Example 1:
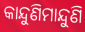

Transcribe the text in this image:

କାନ୍ଦୁଣିମାନ୍ଦୁଣି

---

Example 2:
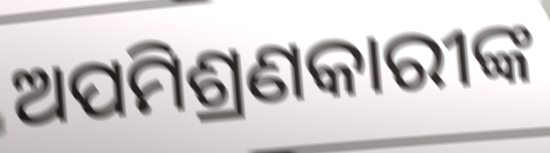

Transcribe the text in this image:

ଅପମିଶ୍ରଣକାରୀଙ୍କ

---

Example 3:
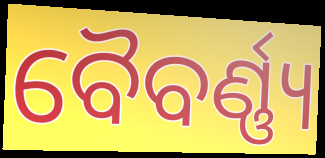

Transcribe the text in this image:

ବୈବର୍ଣ୍ଣ୍ୟ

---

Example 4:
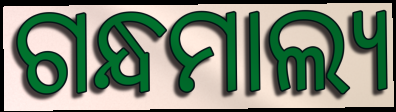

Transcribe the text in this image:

ଗନ୍ଧମାଲ୍ୟ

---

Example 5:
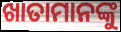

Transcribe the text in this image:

ଖାତାମାନଙ୍କୁ